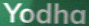
Yodha